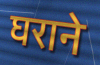
घराने